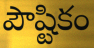
పౌష్టికం